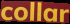
collar